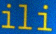
ili